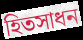
হিতসাধন